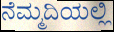
ನೆಮ್ಮದಿಯಲ್ಲಿ